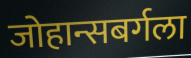
जोहान्सबर्गला